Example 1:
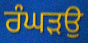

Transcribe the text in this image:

ਰੰਘੜਉ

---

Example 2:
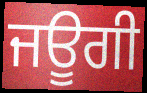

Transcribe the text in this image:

ਜਊਗੀ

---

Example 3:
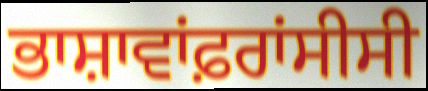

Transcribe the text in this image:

ਭਾਸ਼ਾਵਾਂਫ਼ਰਾਂਸੀਸੀ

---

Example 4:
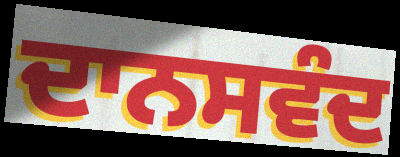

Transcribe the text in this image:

ਦਾਨਸਵੰਦ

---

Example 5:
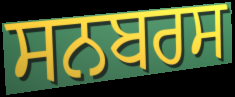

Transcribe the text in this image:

ਸਨਬਰਸ